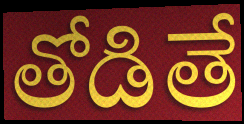
తోడితే